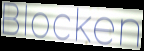
Blocken